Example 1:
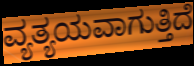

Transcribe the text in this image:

ವ್ಯತ್ಯಯವಾಗುತ್ತಿದೆ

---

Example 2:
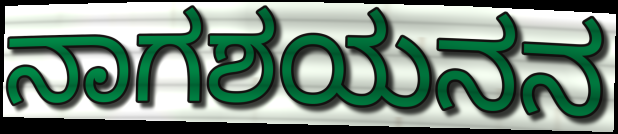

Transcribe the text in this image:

ನಾಗಶಯನನ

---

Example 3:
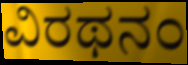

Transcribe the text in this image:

ವಿರಥನಂ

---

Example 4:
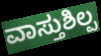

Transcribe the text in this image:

ವಾಸ್ತುಶಿಲ್ಪ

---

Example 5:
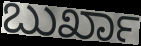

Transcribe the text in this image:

ಬುರ್ಖಾ